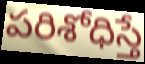
పరిశోధిస్తే